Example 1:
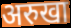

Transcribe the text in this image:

अरुखा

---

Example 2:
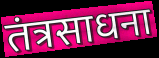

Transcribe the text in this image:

तंत्रसाधना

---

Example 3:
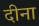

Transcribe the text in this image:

दीना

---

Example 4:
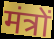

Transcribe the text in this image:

मंत्रों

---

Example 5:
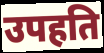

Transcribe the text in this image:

उपहति